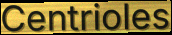
Centrioles